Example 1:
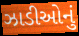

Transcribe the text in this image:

ઝાડીઓનું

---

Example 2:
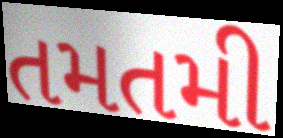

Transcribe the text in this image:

તમતમી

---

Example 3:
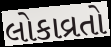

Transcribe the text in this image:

લોકાવ્રતો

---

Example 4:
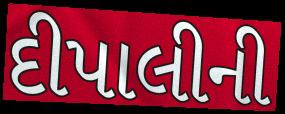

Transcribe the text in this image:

દીપાલીની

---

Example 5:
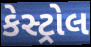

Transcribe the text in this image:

કેસ્ટ્રોલ